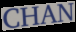
CHAN